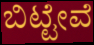
ಬಿಟ್ಟೇವೆ